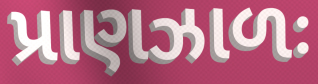
પ્રાણઝાળઃ